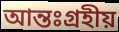
আন্তঃগ্রহীয়